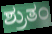
ಶ್ರುತಂ